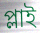
প্লাই